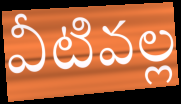
వీటివల్ల